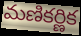
మణికర్ణిక